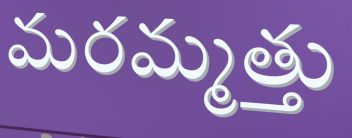
మరమ్మత్తు